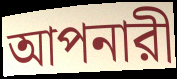
আপনারী